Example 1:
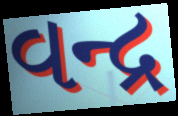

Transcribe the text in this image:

વન્દ્ર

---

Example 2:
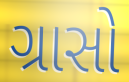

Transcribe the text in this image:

ગ્રાસો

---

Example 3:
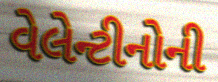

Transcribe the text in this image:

વેલેન્ટીનોની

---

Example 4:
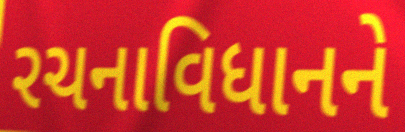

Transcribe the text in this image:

રચનાવિધાનને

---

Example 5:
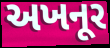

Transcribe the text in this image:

અખનૂર